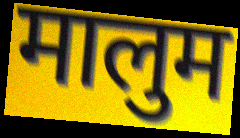
मालुम